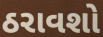
ઠરાવશો